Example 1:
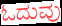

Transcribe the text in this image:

ಓದುವು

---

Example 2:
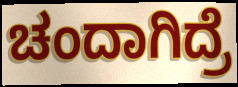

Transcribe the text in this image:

ಚಂದಾಗಿದ್ರೆ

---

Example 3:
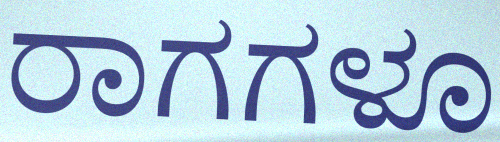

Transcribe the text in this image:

ರಾಗಗಳೂ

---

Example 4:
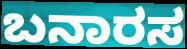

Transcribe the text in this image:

ಬನಾರಸ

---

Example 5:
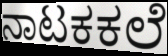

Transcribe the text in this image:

ನಾಟಕಕಲೆ